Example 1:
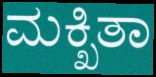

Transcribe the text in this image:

ಮಕ್ಖಿತಾ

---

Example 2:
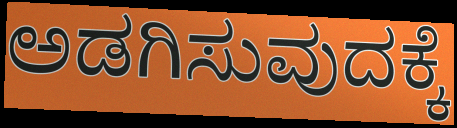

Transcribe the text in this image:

ಅಡಗಿಸುವುದಕ್ಕೆ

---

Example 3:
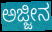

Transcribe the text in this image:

ಅಜ್ಜೀನ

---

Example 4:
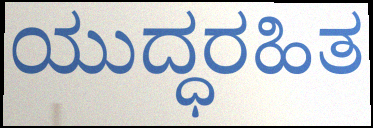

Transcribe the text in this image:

ಯುದ್ಧರಹಿತ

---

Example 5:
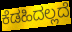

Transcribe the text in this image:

ಕೆಡಹಿದಲ್ಲದೆ